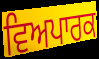
ਵਿਅਪਾਰਕ